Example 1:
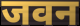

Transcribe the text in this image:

जवन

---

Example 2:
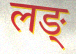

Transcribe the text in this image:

लङ्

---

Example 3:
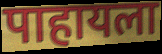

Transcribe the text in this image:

पाहायला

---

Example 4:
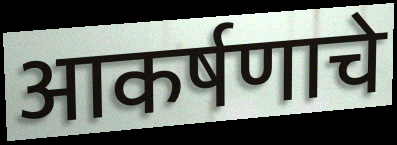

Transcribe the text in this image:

आकर्षणाचे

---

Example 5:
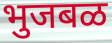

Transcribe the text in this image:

भुजबळ